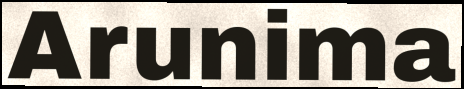
Arunima